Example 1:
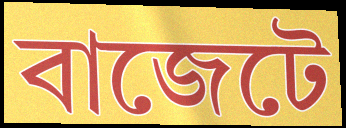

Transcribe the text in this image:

বাজেটে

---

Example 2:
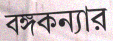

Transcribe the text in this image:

বঙ্গকন্যার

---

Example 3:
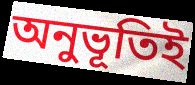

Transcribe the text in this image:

অনুভূতিই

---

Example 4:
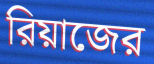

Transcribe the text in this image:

রিয়াজের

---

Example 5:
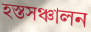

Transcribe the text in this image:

হস্তসঞ্চালন